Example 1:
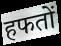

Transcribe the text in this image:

हफतों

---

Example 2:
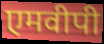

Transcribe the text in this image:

एमवीपी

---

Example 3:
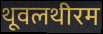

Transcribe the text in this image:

थूवलथीरम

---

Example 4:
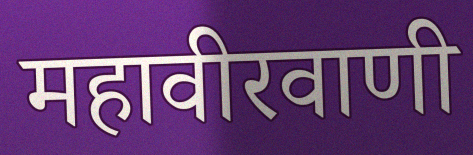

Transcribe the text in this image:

महावीरवाणी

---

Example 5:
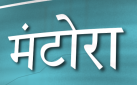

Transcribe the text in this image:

मंटोरा